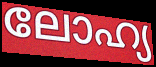
ലോഹ്യ